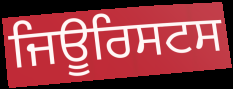
ਜਿਊਰਿਸਟਸ